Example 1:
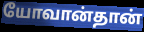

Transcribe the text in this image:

யோவான்தான்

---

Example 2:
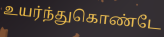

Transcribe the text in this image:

உயர்ந்துகொண்டே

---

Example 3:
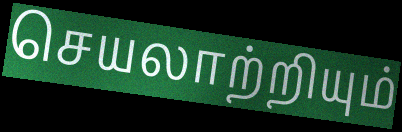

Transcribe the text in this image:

செயலாற்றியும்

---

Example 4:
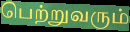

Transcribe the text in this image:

பெற்றுவரும்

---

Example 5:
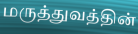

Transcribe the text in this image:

மருத்துவத்தின்